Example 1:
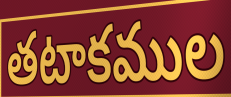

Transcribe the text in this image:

తటాకముల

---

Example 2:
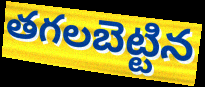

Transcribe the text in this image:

తగలబెట్టిన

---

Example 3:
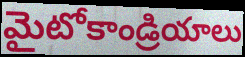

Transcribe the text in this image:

మైటోకాండ్రియాలు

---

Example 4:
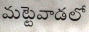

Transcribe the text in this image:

మట్టెవాడలో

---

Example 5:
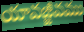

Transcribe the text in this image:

యావజ్జీవము